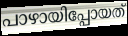
പാഴായിപ്പോയത്